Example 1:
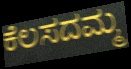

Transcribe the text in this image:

ಕೆಲಸದಮ್ಮ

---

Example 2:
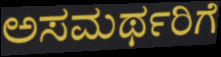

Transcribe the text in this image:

ಅಸಮರ್ಥರಿಗೆ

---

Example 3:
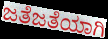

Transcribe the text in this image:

ಜತೆಜತೆಯಾಗಿ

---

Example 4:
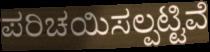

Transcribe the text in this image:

ಪರಿಚಯಿಸಲ್ಪಟ್ಟಿವೆ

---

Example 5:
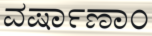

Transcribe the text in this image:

ವರ್ಷಾಣಾಂ